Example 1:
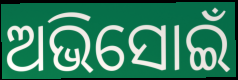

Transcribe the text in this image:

ଅଭିସୋଇଁ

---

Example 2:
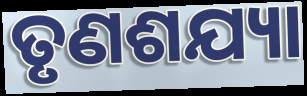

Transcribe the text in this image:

ତୃଣଶଯ୍ୟା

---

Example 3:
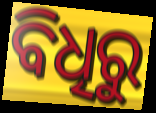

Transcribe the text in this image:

ବିଧିରୁ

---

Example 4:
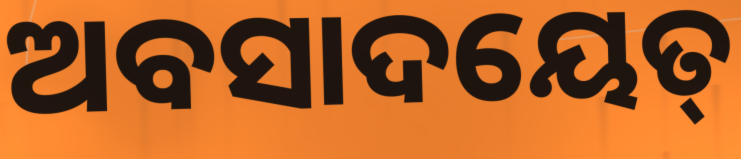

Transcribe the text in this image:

ଅବସାଦୟେତ୍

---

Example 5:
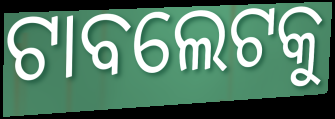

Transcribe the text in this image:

ଟାବଲେଟକୁ